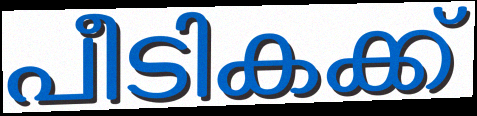
പീടികക്ക്